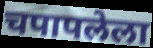
चपापलेला